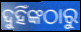
ଦୁହିଁଙ୍କଠାରୁ